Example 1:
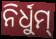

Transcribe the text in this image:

ନିର୍ଧୁମ୍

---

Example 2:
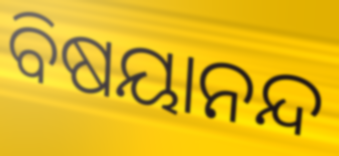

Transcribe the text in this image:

ବିଷୟାନନ୍ଦ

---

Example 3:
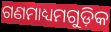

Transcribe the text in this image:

ଗଣମାଧ୍ୟମଗୁଡ଼ିକ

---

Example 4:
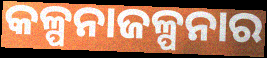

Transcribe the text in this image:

କଳ୍ପନାଜଳ୍ପନାର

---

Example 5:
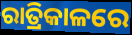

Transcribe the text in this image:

ରାତ୍ରିକାଳରେ